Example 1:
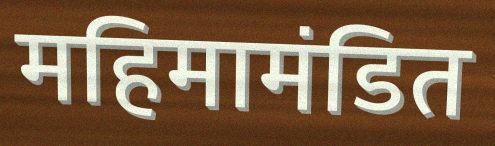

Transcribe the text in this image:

महिमामंडित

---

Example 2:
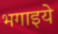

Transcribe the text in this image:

भगाइये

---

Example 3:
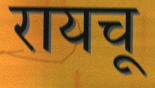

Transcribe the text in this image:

रायचू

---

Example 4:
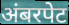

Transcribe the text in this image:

अंबरपेट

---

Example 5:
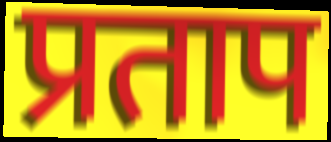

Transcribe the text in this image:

प्रताप